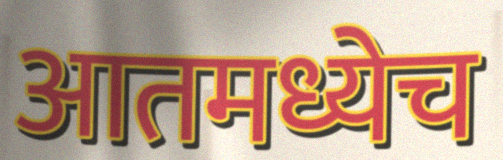
आतमध्येच